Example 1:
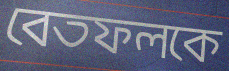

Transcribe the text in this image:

বেতফলকে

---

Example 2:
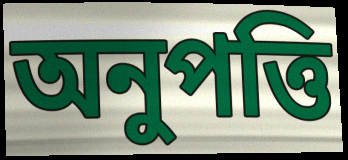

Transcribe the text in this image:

অনুপত্তি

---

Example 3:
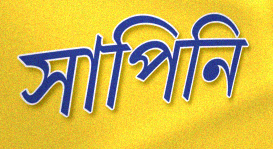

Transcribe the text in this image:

সাপিনি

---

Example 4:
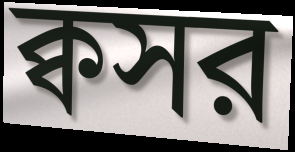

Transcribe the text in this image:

ক্বসর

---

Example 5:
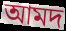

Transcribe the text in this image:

আমদ